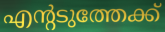
എന്റടുത്തേക്ക്